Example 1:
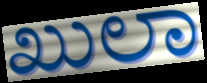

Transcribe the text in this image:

ಖುಲಾ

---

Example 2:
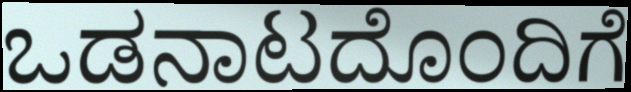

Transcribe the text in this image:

ಒಡನಾಟದೊಂದಿಗೆ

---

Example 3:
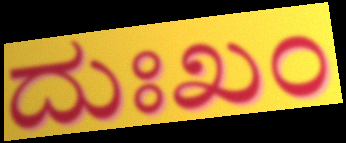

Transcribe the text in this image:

ದುಃಖಂ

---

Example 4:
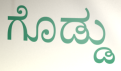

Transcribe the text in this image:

ಗೊಡ್ಡು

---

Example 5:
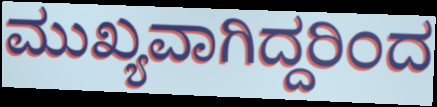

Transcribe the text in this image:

ಮುಖ್ಯವಾಗಿದ್ದರಿಂದ